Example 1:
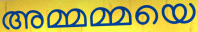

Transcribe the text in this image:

അമ്മമ്മയെ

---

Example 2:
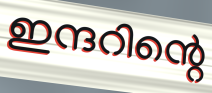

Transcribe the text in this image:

ഇന്ദറിന്റെ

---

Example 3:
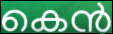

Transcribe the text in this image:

കെൻ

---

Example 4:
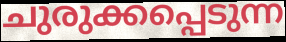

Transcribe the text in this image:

ചുരുക്കപ്പെടുന്ന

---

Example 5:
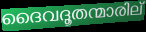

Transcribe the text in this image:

ദൈവദൂതന്മാരില്